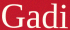
Gadi